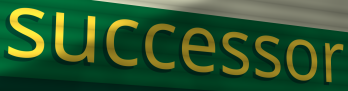
successor